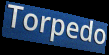
Torpedo